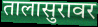
तालासुरावर